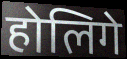
होलिगे